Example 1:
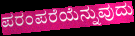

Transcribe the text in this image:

ಪರಂಪರೆಯೆನ್ನುವುದು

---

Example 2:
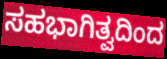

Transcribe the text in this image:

ಸಹಭಾಗಿತ್ವದಿಂದ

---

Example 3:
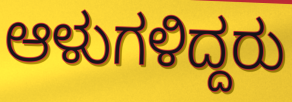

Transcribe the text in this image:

ಆಳುಗಳಿದ್ದರು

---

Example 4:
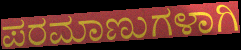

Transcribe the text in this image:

ಪರಮಾಣುಗಳಾಗಿ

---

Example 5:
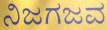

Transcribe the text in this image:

ನಿಜಗಜವ